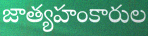
జాత్యహంకారుల